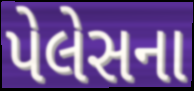
પેલેસના